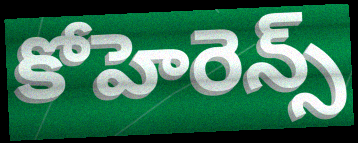
కోహెరెన్స్